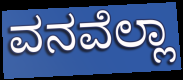
ವನವೆಲ್ಲಾ